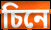
চিনে